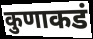
कुणाकडं